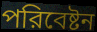
পরিবেষ্টন